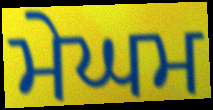
ਮੇਘਮ